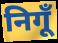
निगूँ